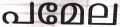
പമേല